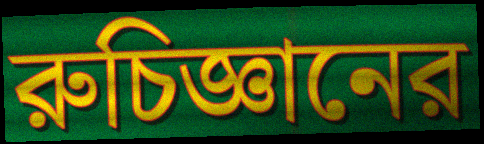
রুচিজ্ঞানের